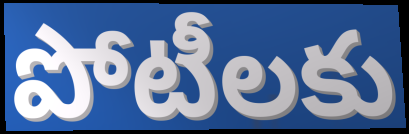
పోటీలకు